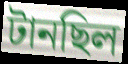
টানছিল